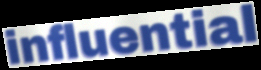
influential